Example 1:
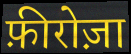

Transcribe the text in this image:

फ़ीरोज़ा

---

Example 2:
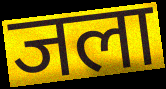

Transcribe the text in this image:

जला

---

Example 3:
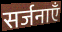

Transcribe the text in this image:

सर्जनाएँ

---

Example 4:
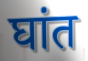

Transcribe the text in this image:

घांत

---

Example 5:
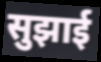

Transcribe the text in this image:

सुझाई